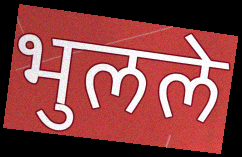
भुलले